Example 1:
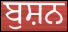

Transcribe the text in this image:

ਬੁਸ਼ਨ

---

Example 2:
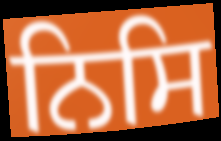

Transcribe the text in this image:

ਨਿਸਿ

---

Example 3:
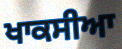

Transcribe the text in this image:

ਖਾਕਸੀਆ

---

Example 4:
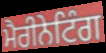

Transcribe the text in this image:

ਮੈਰੀਨੇਟਿੰਗ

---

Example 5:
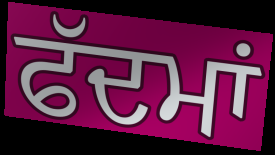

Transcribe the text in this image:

ਫੱਦਮਾਂ